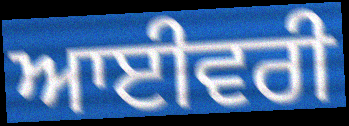
ਆਈਵਰੀ